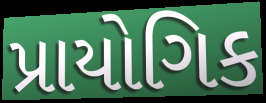
પ્રાયોગિક